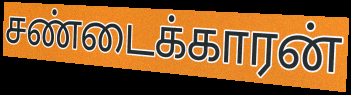
சண்டைக்காரன்